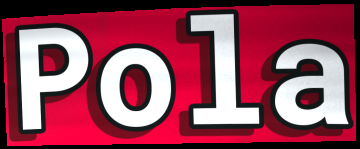
Pola